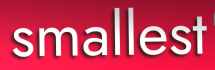
smallest